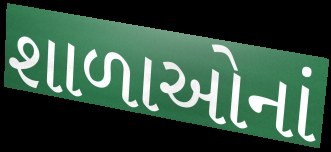
શાળાઓનાં